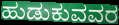
ಹುಡುಕುವವರ